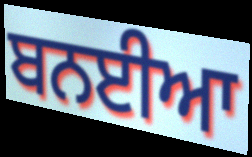
ਬਨਈਆ